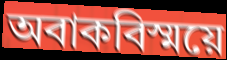
অবাকবিস্ময়ে